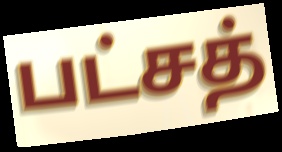
பட்சத்